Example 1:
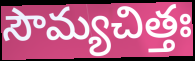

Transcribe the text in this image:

సౌమ్యచిత్తః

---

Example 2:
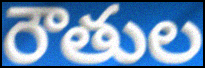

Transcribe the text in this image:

రౌతుల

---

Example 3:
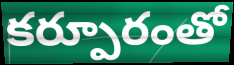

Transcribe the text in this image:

కర్పూరంతో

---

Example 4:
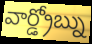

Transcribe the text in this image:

వార్డ్రోబ్ను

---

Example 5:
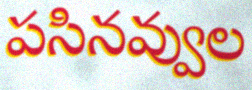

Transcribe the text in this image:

పసినవ్వుల